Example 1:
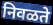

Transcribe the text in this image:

निवळते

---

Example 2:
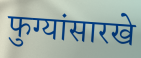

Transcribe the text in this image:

फुग्यांसारखे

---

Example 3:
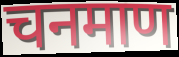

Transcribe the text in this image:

चनमाण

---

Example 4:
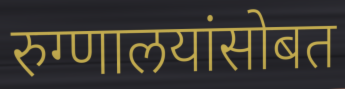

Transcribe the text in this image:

रुग्णालयांसोबत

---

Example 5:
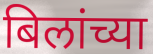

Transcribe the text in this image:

बिलांच्या